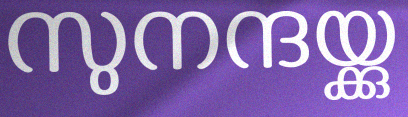
സുനന്ദയ്ക്കു